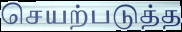
செயற்படுத்த